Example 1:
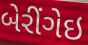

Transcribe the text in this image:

બેરીંગેઇ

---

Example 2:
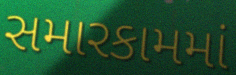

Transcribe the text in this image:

સમારકામમાં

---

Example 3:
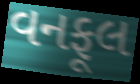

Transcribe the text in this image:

વનફૂલ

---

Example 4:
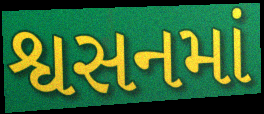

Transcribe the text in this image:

શ્વસનમાં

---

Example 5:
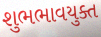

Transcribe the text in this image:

શુભભાવયુક્ત